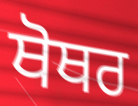
ਥੋਥਰ